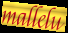
mallelu